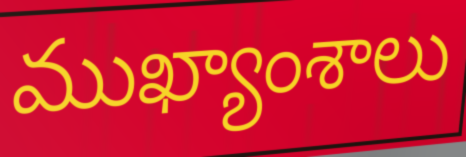
ముఖ్యాంశాలు